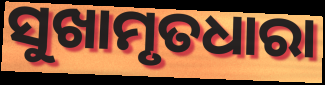
ସୁଖାମୃତଧାରା